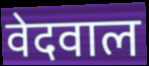
वेदवाल